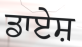
ਡਾਏਸ਼